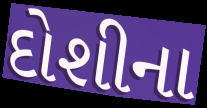
દોશીના